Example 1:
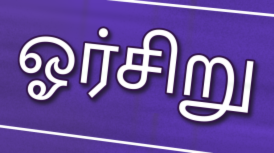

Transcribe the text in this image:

ஓர்சிறு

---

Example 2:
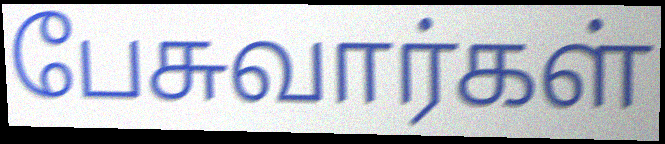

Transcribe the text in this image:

பேசுவார்கள்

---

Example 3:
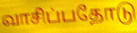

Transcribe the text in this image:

வாசிப்பதோடு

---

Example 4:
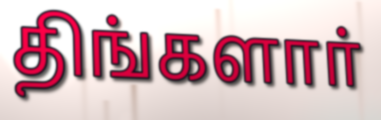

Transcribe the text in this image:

திங்களார்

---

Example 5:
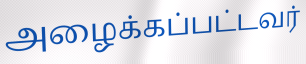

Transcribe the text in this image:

அழைக்கப்பட்டவர்